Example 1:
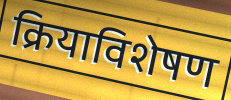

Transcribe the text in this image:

क्रियाविशेषण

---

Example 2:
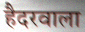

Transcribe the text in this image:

हैदरवाला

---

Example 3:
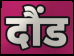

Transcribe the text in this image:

दौंड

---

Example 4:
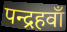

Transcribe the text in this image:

पन्द्रहवाँ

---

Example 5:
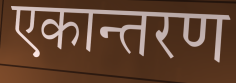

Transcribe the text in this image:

एकान्तरण